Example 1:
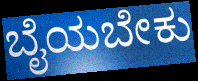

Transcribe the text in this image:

ಬೈಯಬೇಕು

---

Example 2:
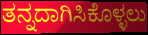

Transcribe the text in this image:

ತನ್ನದಾಗಿಸಿಕೊಳ್ಳಲು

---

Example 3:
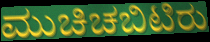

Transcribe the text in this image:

ಮುಚಿಚಬಿಟಿರು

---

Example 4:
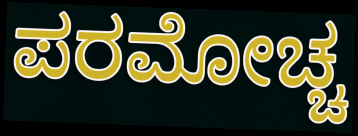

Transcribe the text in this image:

ಪರಮೋಚ್ಚ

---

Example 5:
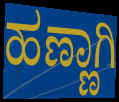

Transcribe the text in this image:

ಹಣ್ಣಾಗಿ